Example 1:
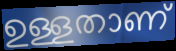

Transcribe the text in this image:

ഉള്ളതാണ്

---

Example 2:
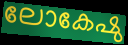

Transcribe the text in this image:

ലോകേഷു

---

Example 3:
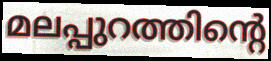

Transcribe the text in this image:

മലപ്പുറത്തിന്റെ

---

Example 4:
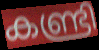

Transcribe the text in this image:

കണ്ട്രി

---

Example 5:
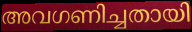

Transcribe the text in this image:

അവഗണിച്ചതായി